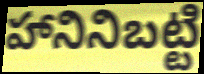
హానినిబట్టి